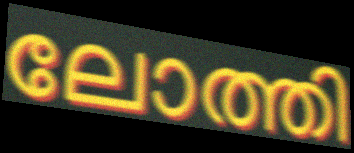
ലോത്തി